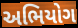
અભિયોગ